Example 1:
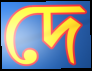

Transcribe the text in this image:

দে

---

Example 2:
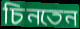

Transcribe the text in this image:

চিনতেন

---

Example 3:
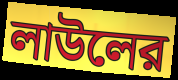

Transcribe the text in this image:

লাউলের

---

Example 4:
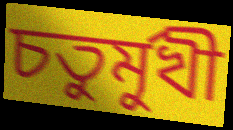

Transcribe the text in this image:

চতুর্মুখী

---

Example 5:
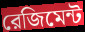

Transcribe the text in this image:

রেজিমেন্ট